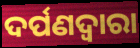
ଦର୍ପଣଦ୍ୱାରା